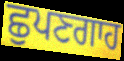
ਛੁਪਣਗਾਹ